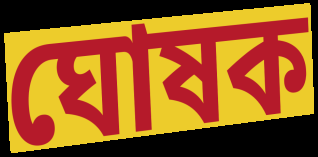
ঘোষক